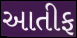
આતીફ